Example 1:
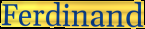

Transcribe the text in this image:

Ferdinand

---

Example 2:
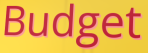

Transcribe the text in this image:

Budget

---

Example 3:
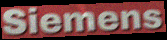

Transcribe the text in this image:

Siemens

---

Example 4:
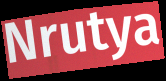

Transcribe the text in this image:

Nrutya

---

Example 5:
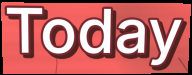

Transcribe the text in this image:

Today